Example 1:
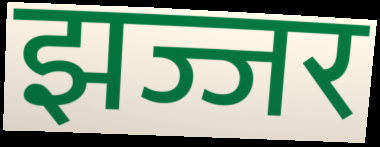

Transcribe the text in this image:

झज्जर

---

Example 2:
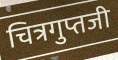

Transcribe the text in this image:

चित्रगुप्तजी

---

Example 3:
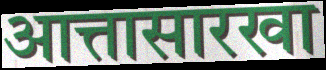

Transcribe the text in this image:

आत्तासारखा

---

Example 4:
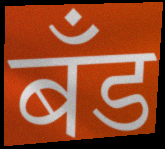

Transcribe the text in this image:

बॅंड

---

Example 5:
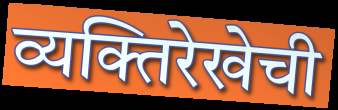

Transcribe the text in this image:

व्यक्तिरेखेची